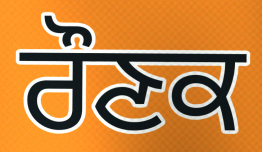
ਰੌਣਕ